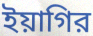
ইয়াগির